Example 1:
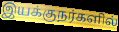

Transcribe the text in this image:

இயக்குநர்களில்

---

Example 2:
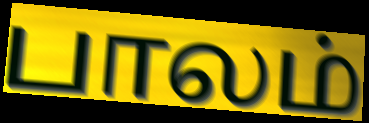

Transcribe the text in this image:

பாலம்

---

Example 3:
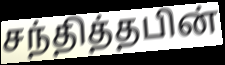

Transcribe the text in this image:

சந்தித்தபின்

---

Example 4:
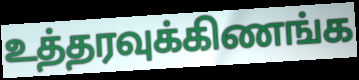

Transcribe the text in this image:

உத்தரவுக்கிணங்க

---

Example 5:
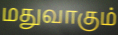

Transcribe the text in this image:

மதுவாகும்